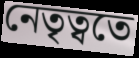
নেতৃত্বতে